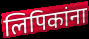
लिपिकांना